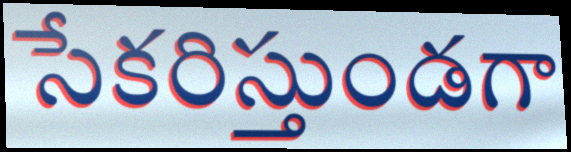
సేకరిస్తుండగా